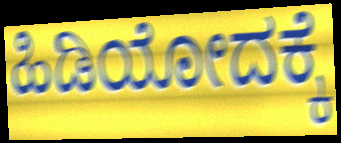
ಹಿಡಿಯೋದಕ್ಕೆ